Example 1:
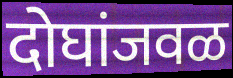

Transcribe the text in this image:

दोघांजवळ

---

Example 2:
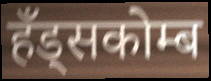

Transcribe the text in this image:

हँड्सकोम्ब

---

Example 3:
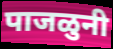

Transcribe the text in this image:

पाजळुनी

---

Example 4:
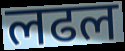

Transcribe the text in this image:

लढल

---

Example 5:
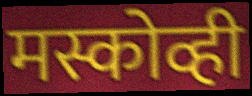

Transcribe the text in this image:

मस्कोव्ही